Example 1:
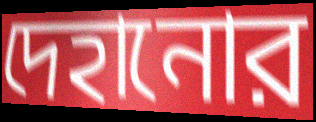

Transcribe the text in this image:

দেহানোর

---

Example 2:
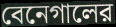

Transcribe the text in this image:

বেনেগালের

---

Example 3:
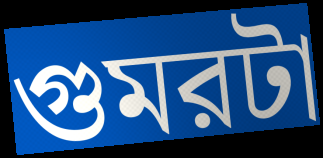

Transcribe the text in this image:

গুমরটা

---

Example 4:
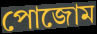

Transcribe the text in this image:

পোজোম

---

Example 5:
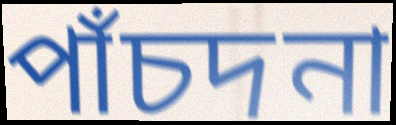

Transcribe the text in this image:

পাঁচদনা